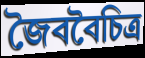
জৈববৈচিত্র